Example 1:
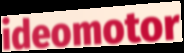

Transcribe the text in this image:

ideomotor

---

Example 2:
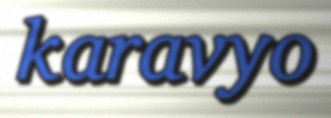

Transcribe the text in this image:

karavyo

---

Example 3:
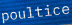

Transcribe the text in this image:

poultice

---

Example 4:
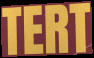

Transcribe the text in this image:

TERT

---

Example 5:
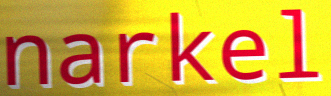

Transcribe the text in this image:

narkel